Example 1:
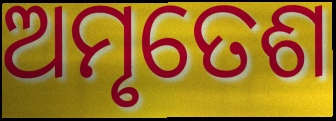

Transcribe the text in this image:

ଅମୃତେଶ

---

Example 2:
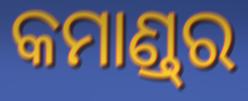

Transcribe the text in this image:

କମାଣ୍ଡ୍‌ର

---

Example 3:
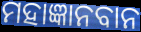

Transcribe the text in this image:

ମହାଜ୍ଞାନବାନ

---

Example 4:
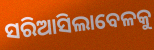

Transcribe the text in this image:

ସରିଆସିଲାବେଳକୁ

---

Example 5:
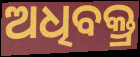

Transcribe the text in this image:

ଅଧିବକ୍ତ୍ର